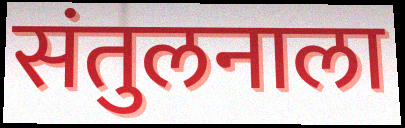
संतुलनाला